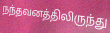
நந்தவனத்திலிருந்து